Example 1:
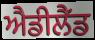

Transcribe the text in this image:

ਐਡੀਲੈਂਡ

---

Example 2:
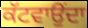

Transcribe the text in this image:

ਕੱਟਵਾਉਂਦਾ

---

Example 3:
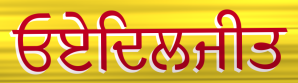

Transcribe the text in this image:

ਓਏਦਿਲਜੀਤ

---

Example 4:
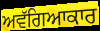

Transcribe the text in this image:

ਅਵੱਗਿਆਕਾਰ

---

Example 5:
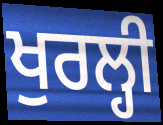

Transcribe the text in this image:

ਖੁਰਲ੍ਹੀ